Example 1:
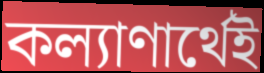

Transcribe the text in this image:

কল্যাণার্থেই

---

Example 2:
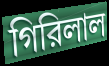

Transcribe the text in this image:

গিরিলাল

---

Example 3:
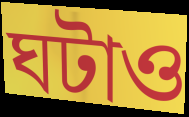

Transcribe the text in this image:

ঘটাও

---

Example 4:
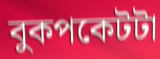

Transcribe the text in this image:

বুকপকেটটা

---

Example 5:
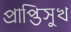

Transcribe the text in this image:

প্রাপ্তিসুখ